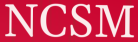
NCSM